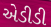
એડીડી